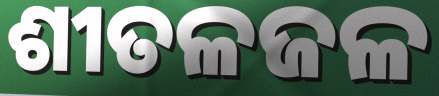
ଶୀତଳଜଳ